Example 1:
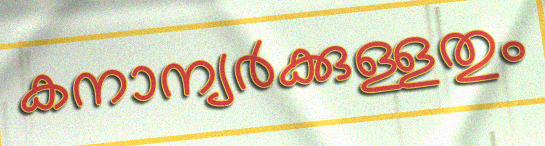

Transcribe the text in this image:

കനാന്യർക്കുള്ളതും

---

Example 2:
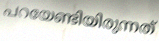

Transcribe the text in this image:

പറയേണ്ടിയിരുന്നത്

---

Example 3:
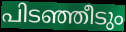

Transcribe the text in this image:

പിടഞ്ഞീടും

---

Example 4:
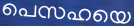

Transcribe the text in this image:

പെസഹയെ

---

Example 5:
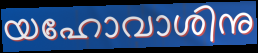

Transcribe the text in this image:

യഹോവാശിനു